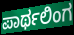
ಪಾರ್ಥಲಿಂಗ